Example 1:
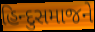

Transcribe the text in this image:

હિન્દુસમાજને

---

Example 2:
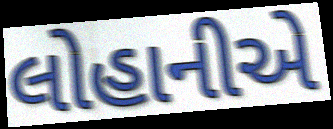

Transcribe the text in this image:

લોહાનીએ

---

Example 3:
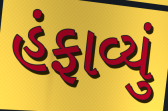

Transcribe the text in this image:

હંફાવ્યું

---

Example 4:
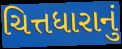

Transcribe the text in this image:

ચિત્તધારાનું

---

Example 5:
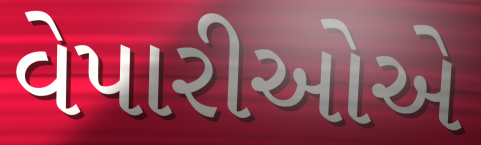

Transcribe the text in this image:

વેપારીઓએ